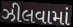
ઝીલવામાં